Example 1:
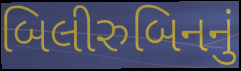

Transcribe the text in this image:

બિલીરુબિનનું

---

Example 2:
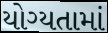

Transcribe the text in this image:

યોગ્યતામાં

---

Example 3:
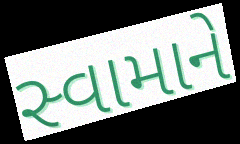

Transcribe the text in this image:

સ્વામાને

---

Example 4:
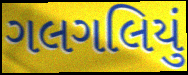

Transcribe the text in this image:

ગલગલિયું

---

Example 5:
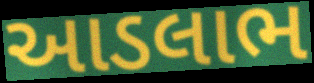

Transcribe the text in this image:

આડલાભ